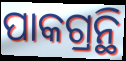
ପାକଗ୍ରନ୍ଥି